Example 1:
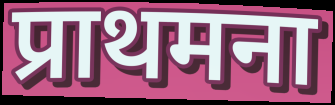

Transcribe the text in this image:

प्राथमना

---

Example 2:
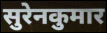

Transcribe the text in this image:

सुरेनकुमार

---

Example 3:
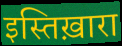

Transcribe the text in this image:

इस्तिख़ारा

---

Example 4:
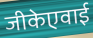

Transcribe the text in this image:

जीकेएवाई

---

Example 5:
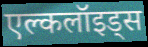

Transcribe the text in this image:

एल्कलॉइड्स